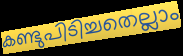
കണ്ടുപിടിച്ചതെല്ലാം